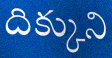
దిక్కుని